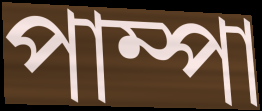
পাম্পা